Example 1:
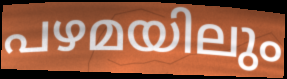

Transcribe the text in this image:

പഴമയിലും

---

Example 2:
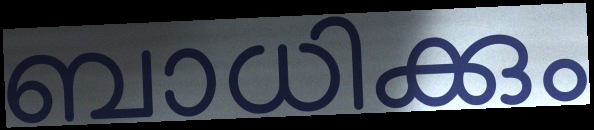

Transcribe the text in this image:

ബാധിക്കും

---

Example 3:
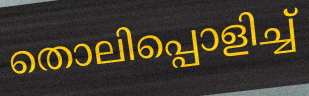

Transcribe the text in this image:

തൊലിപ്പൊളിച്ച്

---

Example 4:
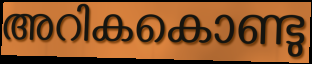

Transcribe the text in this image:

അറികകൊണ്ടു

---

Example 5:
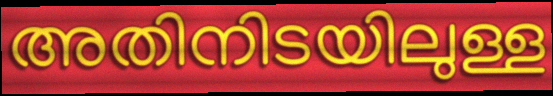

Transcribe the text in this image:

അതിനിടയിലുള്ള